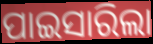
ପାଇସାରିଲା